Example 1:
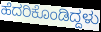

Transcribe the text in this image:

ಹೆದರಿಕೊಂಡಿದ್ದಳು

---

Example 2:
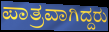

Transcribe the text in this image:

ಪಾತ್ರವಾಗಿದ್ದರು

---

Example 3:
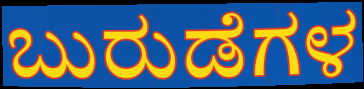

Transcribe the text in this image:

ಬುರುಡೆಗಳ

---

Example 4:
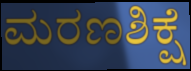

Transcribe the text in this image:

ಮರಣಶಿಕ್ಷೆ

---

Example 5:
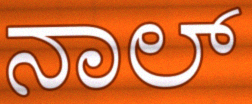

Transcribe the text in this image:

ನಾಲ್